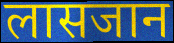
लासजान